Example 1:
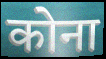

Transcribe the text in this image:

कोना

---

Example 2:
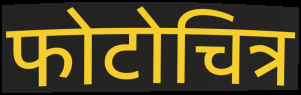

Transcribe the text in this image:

फोटोचित्र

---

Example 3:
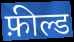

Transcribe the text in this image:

फ़ील्ड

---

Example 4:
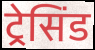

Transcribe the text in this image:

ट्रेसिंड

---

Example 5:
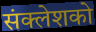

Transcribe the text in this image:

संक्लेशको